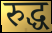
रुद्ध